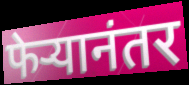
फेऱ्यानंतर